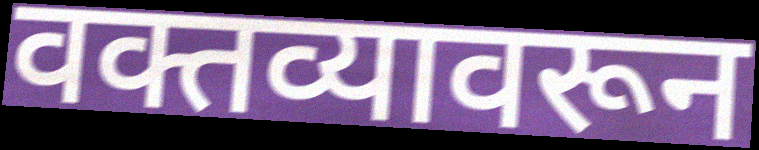
वक्तव्यावरून